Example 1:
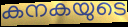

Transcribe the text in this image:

കനകയുടെ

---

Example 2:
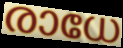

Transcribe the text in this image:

രാധേ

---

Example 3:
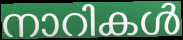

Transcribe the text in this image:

നാറികൾ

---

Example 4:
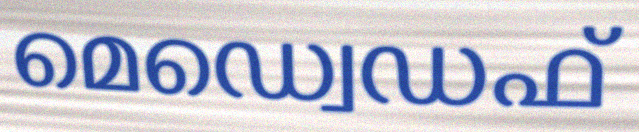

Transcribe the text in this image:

മെഡ്വെഡഫ്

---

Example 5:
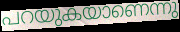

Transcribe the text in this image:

പറയുകയാണെന്നു